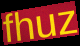
fhuz